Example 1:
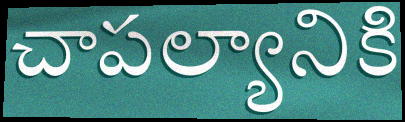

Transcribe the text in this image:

చాపల్యానికి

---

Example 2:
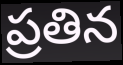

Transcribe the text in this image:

ప్రతిన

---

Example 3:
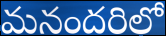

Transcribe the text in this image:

మనందరిలో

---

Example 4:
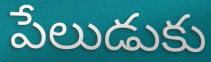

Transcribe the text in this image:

పేలుడుకు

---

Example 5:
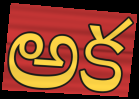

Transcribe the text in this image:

అక